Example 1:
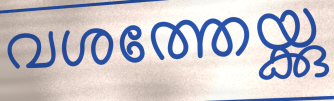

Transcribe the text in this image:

വശത്തേയ്ക്കു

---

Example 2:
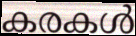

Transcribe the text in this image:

കരകൾ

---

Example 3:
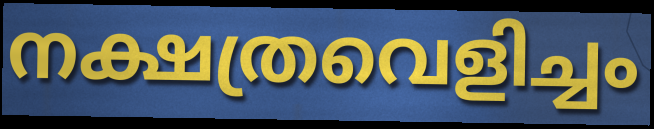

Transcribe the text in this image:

നക്ഷത്രവെളിച്ചം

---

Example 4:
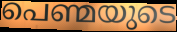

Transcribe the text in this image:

പെണ്മയുടെ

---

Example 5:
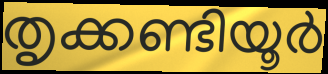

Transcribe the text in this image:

തൃക്കണ്ടിയൂർ